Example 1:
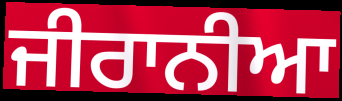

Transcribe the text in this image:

ਜੀਰਾਨੀਆ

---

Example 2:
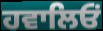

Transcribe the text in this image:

ਹਵਾਲਿਓਂ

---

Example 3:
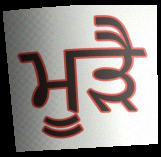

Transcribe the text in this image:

ਮੂੜੈ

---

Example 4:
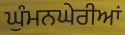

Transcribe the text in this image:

ਘੁੰਮਨਘੇਰੀਆਂ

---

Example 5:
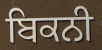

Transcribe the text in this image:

ਬਿਕਨੀ